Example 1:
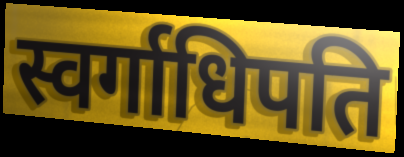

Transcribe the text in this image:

स्वर्गाधिपति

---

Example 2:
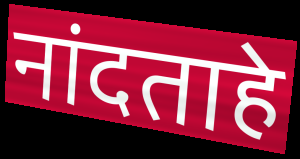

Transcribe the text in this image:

नांदताहे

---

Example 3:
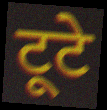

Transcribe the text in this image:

टूटे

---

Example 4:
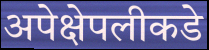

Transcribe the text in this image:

अपेक्षेपलीकडे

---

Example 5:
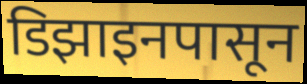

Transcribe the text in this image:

डिझाइनपासून